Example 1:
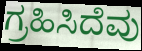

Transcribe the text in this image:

ಗ್ರಹಿಸಿದೆವು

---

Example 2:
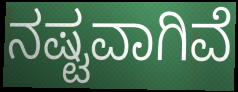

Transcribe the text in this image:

ನಷ್ಟವಾಗಿವೆ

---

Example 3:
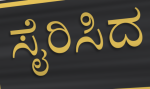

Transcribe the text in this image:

ಸೈರಿಸಿದ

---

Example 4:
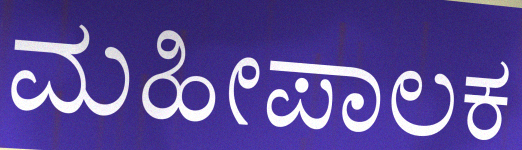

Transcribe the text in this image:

ಮಹೀಪಾಲಕ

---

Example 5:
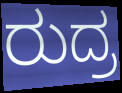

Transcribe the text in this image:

ರುದ್ರ